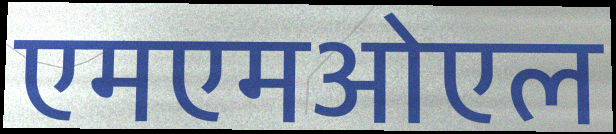
एमएमओएल